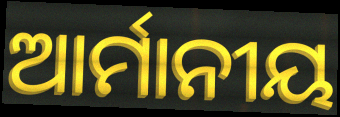
ଆର୍ମାନୀୟ